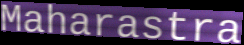
Maharastra